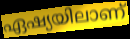
ഏഷ്യയിലാണ്